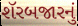
શૅરબજારનું